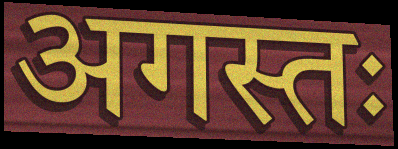
अगस्तः